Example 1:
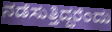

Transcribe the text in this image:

ನಡೆಸುತ್ತಿದ್ದರೆಂದು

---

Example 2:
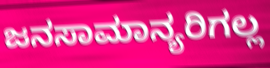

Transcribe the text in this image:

ಜನಸಾಮಾನ್ಯರಿಗಲ್ಲ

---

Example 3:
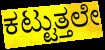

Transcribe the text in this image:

ಕಟ್ಟುತ್ತಲೇ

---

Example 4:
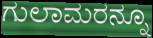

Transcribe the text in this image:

ಗುಲಾಮರನ್ನೂ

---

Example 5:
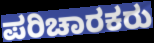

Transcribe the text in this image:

ಪರಿಚಾರಕರು